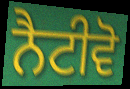
ਨੈਟੀਵੋ